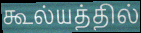
கூல்யத்தில்